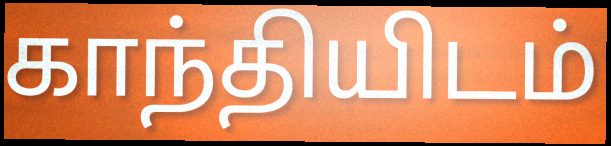
காந்தியிடம்